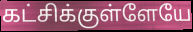
கட்சிக்குள்ளேயே